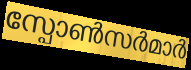
സ്പോൺസർമാർ